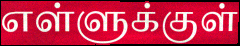
எள்ளுக்குள்